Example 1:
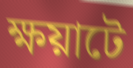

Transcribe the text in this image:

ক্ষয়াটে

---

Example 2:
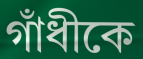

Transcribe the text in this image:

গাঁধীকে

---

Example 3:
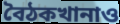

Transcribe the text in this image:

বৈঠকখানাও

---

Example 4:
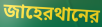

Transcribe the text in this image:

জাহেরথানের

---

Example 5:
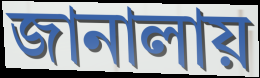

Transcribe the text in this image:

জানালায়